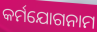
କର୍ମଯୋଗନାମ